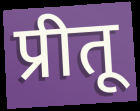
प्रीतू